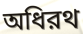
অধিরথ